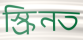
স্ক্ৰিনত